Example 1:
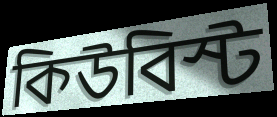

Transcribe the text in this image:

কিউবিস্ট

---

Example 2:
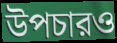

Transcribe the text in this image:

উপচারও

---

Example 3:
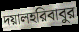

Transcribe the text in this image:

দয়ালহরিবাবুর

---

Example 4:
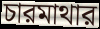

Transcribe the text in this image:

চারমাথার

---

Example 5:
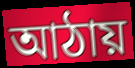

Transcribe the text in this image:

আঠায়